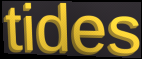
tides